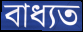
বাধ্যত